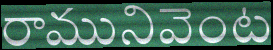
రామునివెంట